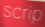
scrip